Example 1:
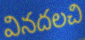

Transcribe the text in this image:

వినదలచి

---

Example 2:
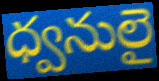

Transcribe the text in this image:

ధ్వనులై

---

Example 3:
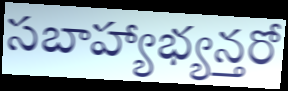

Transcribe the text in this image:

సబాహ్యాభ్యన్తరో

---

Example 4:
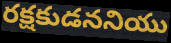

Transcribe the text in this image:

రక్షకుడననియు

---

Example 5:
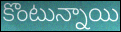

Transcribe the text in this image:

కొంటున్నాయి